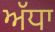
ਅੱਧਾ